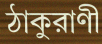
ঠাকুরাণী